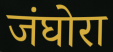
जंघोरा